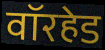
वॉरहेड